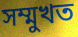
সম্মুখত